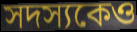
সদস্যকেও